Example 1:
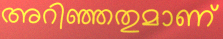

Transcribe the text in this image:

അറിഞ്ഞതുമാണ്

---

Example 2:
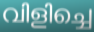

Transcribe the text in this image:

വിളിച്ചെ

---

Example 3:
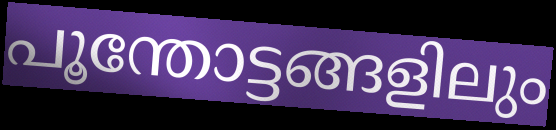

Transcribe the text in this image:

പൂന്തോട്ടങ്ങളിലും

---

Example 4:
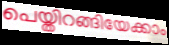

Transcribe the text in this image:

പെയ്തിറങ്ങിയേക്കാം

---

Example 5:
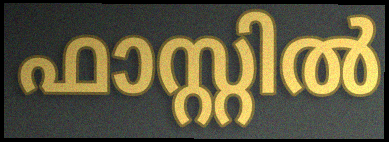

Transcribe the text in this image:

ഫാസ്റ്റിൽ